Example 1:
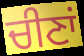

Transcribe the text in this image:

ਚੀਣਾਂ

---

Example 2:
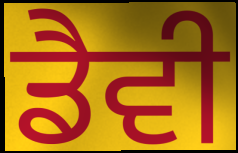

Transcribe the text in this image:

ਡੈਵੀ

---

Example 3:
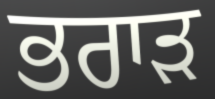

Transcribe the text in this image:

ਭਰਾੜ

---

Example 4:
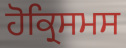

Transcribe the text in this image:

ਹੋਕ੍ਰਿਸਮਸ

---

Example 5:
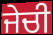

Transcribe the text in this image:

ਜੇਚੀ